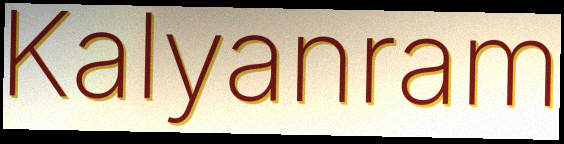
Kalyanram